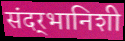
संदर्भानिशी